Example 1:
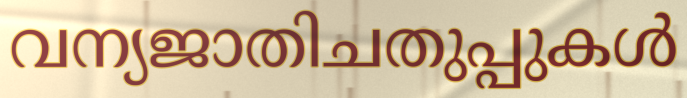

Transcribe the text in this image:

വന്യജാതിചതുപ്പുകൾ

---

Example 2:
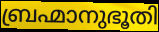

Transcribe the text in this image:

ബ്രഹ്മാനുഭൂതി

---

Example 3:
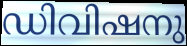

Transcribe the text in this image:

ഡിവിഷനു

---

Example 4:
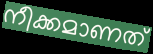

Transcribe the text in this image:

നീക്കമാണത്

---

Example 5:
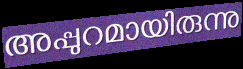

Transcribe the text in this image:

അപ്പുറമായിരുന്നു